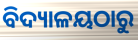
ବିଦ୍ୟାଳୟଠାରୁ